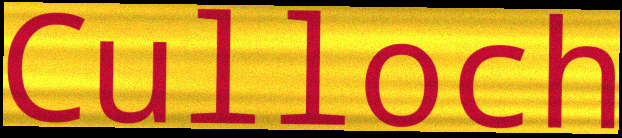
Culloch